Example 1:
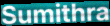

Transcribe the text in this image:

Sumithra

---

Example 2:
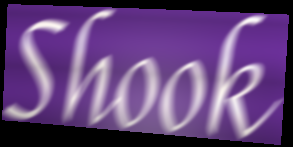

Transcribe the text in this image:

Shook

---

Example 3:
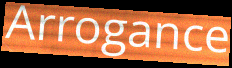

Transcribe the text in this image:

Arrogance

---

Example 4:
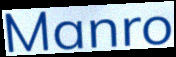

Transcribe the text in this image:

Manro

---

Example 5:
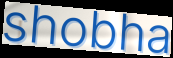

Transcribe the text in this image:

shobha